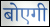
बोएगी